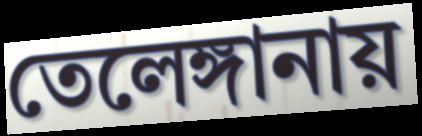
তেলেঙ্গানায়